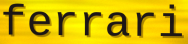
ferrari